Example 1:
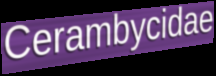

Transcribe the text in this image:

Cerambycidae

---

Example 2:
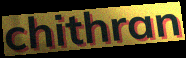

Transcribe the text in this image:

chithran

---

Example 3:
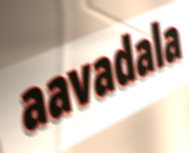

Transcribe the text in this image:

aavadala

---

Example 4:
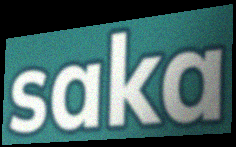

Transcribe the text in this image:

saka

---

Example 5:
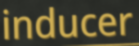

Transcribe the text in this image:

inducer